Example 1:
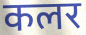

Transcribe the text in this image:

कलर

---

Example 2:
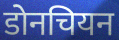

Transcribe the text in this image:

डोनचियन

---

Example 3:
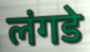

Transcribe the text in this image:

लंगडे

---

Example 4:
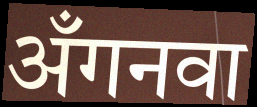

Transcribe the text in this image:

अँगनवा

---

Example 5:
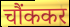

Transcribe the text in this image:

चौंककर